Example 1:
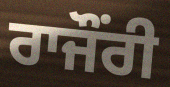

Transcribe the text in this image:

ਰਾਜੌਂਰੀ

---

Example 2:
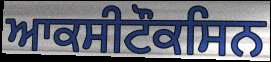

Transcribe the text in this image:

ਆਕਸੀਟੌਕਸਿਨ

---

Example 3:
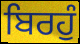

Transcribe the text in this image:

ਬਿਰਹੁੰ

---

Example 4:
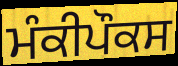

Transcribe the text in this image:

ਮੰਕੀਪੌਕਸ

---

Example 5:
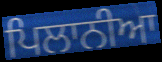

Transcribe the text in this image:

ਪਿਲਾਨੀਆ